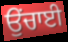
ਉਂਚਾਈ